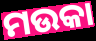
ମଉକା